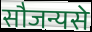
सौजन्यसे